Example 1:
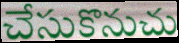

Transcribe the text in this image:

చేసుకొనుచు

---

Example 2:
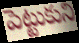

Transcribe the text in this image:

పెట్టుకుని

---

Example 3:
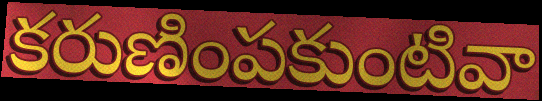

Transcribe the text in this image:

కరుణింపకుంటివా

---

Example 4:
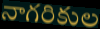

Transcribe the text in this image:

నాగరికుల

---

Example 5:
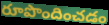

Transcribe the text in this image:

రూపొందించడం